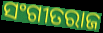
ସଂଗୀତରାଜ